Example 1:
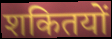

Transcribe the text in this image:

शकितयों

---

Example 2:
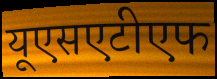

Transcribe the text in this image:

यूएसएटीएफ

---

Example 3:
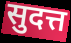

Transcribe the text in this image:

सुदत्त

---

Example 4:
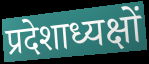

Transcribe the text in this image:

प्रदेशाध्यक्षों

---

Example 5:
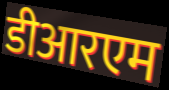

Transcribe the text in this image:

डीआरएम